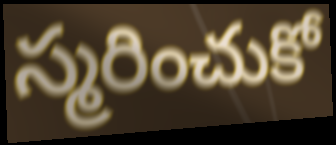
స్మరించుకో